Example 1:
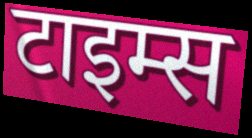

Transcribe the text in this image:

टाइम्स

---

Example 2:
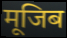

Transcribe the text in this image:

मूजिब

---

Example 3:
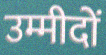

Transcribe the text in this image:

उम्मीदों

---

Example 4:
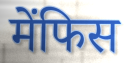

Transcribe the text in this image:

मेंफिस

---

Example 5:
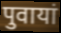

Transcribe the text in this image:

पुवायां